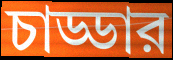
চাড্ডার